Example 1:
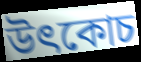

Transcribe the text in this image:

উৎকোচ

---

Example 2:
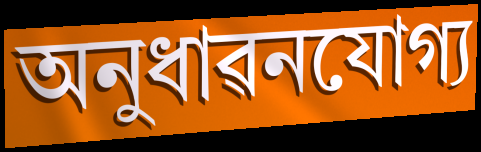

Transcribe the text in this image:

অনুধাৱনযোগ্য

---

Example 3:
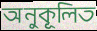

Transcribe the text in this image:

অনুকূলিত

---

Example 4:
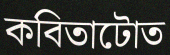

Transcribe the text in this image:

কবিতাটোত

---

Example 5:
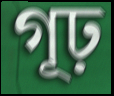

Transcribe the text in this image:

গূঢ়